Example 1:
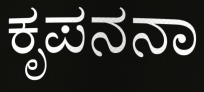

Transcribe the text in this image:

ಕೃಪನನಾ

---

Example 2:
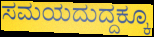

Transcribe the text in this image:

ಸಮಯದುದ್ದಕ್ಕೂ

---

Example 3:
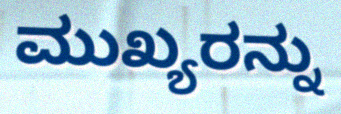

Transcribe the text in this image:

ಮುಖ್ಯರನ್ನು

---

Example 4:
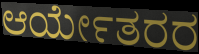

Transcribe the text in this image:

ಆರ್ಯೇತರರ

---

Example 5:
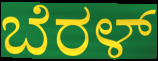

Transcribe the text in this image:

ಬೆರಳ್